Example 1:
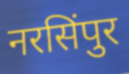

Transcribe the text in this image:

नरसिंपुर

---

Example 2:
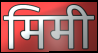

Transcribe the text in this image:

मिमी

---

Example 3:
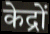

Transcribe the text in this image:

केद्रों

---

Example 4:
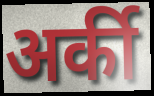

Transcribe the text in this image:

अर्की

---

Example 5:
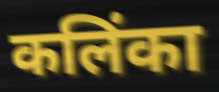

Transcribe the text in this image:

कलिंका